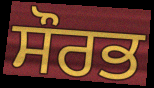
ਸੌਰਭ